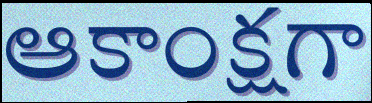
ఆకాంక్షగా